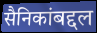
सैनिकांबद्दल